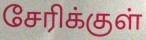
சேரிக்குள்